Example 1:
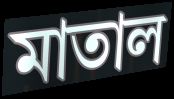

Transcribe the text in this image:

মাতাল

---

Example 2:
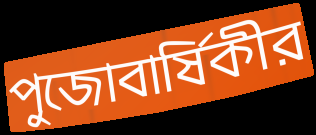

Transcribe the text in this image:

পুজোবার্ষিকীর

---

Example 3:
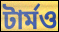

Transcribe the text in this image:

টার্মও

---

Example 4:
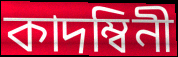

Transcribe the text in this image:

কাদম্বিনী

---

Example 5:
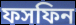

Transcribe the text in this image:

ফসফিন